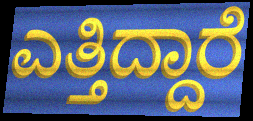
ಎತ್ತಿದ್ದಾರೆ